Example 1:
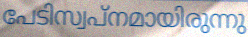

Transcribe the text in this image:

പേടിസ്വപ്നമായിരുന്നു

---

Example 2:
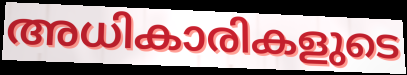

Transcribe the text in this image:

അധികാരികളുടെ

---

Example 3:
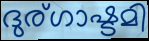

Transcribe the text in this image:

ദുര്ഗാഷ്ടമി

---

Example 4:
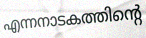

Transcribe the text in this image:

എന്നനാടകത്തിന്റെ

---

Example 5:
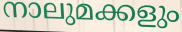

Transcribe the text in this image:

നാലുമക്കളും